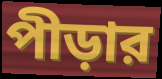
পীড়ার